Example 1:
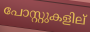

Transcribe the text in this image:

പോസ്റ്റുകളില്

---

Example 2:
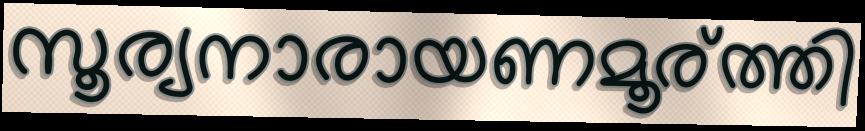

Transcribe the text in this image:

സൂര്യനാരായണമൂര്ത്തി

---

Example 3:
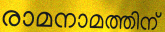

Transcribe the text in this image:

രാമനാമത്തിന്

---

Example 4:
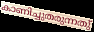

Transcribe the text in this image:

കാണിച്ചുതരുന്നതു്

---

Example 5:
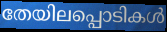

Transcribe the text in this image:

തേയിലപ്പൊടികൾ